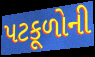
પટકૂળોની